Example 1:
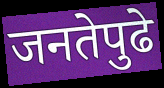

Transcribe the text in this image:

जनतेपुढे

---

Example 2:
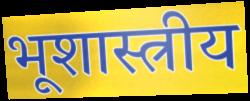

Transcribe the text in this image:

भूशास्त्रीय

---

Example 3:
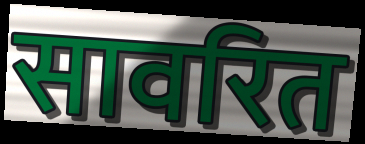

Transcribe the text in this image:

सावरित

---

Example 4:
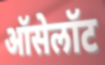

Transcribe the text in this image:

ऑसेलॉट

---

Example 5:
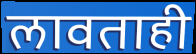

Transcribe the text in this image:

लावताही